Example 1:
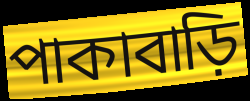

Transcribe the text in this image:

পাকাবাড়ি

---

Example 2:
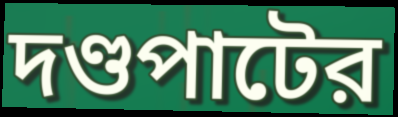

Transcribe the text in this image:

দণ্ডপাটের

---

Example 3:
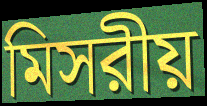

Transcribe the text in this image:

মিসরীয়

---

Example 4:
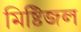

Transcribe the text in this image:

মিষ্টিজল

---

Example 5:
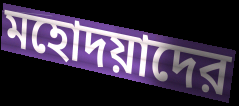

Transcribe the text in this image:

মহোদয়াদের